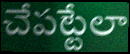
చేపట్టేలా